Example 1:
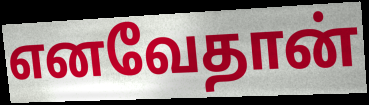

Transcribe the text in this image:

எனவேதான்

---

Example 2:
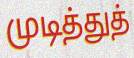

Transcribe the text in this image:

முடித்துத்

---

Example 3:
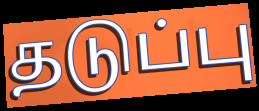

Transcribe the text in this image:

தடுப்பு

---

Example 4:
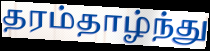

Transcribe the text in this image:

தரம்தாழ்ந்து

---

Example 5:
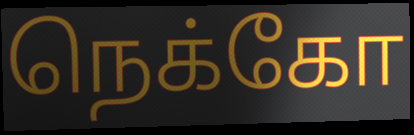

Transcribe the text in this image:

நெக்கோ